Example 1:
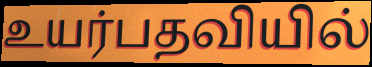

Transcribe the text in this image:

உயர்பதவியில்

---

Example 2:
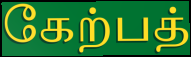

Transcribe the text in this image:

கேற்பத்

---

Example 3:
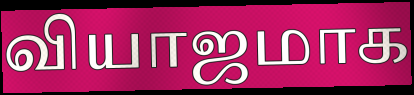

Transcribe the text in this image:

வியாஜமாக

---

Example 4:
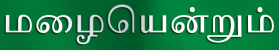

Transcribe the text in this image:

மழையென்றும்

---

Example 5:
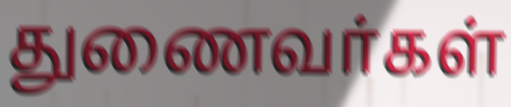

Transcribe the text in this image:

துணைவர்கள்